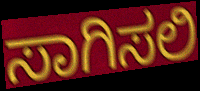
ಸಾಗಿಸಲಿ